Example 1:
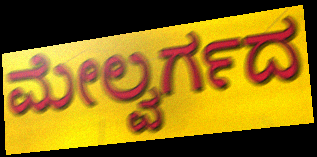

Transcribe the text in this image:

ಮೇಲ್ವರ್ಗದ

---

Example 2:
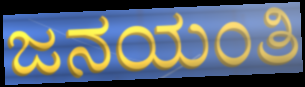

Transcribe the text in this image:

ಜನಯಂತಿ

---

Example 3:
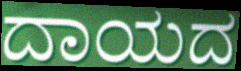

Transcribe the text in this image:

ದಾಯದ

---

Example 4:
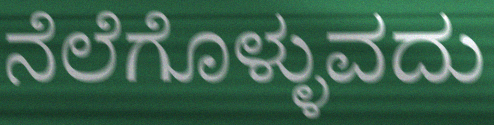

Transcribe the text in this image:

ನೆಲೆಗೊಳ್ಳುವದು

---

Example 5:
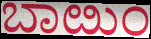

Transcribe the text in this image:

ಬಾೞುಂ